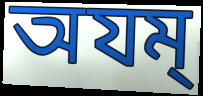
অযম্